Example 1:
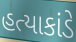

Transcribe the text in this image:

હત્યાકાંડે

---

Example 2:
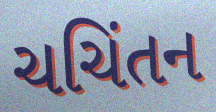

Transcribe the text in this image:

ચચિંતન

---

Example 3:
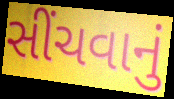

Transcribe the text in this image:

સીંચવાનું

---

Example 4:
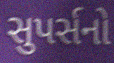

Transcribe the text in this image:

સુપર્સનો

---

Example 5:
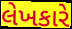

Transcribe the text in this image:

લેખકારે